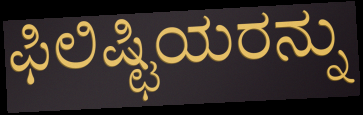
ಫಿಲಿಷ್ಟಿಯರನ್ನು